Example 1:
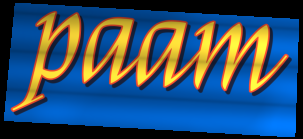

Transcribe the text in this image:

paam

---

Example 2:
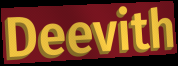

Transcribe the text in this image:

Deevith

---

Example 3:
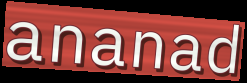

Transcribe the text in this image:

ananad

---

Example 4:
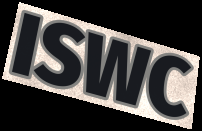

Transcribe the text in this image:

ISWC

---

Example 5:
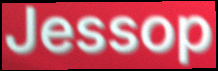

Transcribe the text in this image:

Jessop